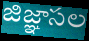
జిజ్ఞాసల